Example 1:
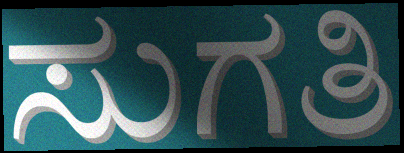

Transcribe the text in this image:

ಸುಗತಿ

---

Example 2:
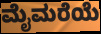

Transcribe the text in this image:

ಮೈಮರೆಯೆ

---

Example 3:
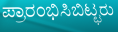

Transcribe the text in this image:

ಪ್ರಾರಂಭಿಸಿಬಿಟ್ಟರು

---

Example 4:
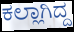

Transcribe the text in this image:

ಕಲ್ಲಾಗಿದ್ದ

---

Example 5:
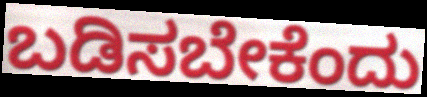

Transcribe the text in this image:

ಬಡಿಸಬೇಕೆಂದು